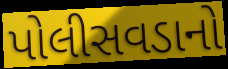
પોલીસવડાનો